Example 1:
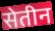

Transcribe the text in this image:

सेतीन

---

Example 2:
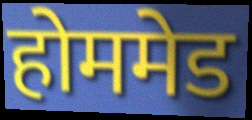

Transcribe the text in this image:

होममेड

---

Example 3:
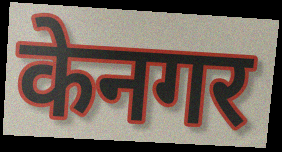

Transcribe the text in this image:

केनगर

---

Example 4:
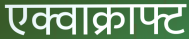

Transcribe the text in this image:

एक्वाक्राफ्ट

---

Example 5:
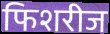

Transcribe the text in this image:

फिशरीज